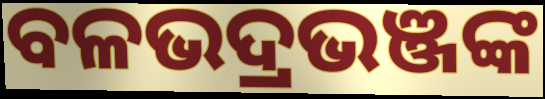
ବଳଭଦ୍ରଭଞ୍ଜଙ୍କ